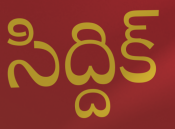
సిద్దిక్